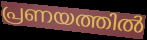
പ്രണയത്തിൽ